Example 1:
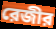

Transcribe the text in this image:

রেজীর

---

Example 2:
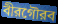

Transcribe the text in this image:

বীরগৌরব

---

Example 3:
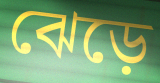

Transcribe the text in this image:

ঝেড়ে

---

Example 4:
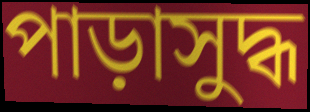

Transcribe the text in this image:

পাড়াসুদ্ধ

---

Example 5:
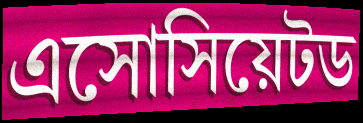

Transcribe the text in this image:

এসোসিয়েটড